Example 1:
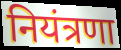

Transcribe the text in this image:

नियंत्रणा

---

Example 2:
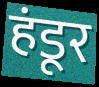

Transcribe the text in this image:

हंडूर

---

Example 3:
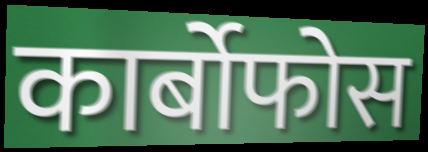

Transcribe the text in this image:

कार्बोफोस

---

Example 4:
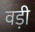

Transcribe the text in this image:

वड़ी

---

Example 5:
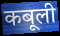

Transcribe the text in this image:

कबूली